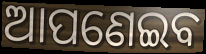
ଆପଣେଇବ